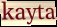
kayta